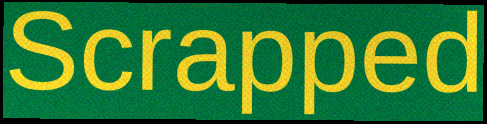
Scrapped